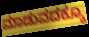
ಮಾಡುವದಕ್ಕೂ